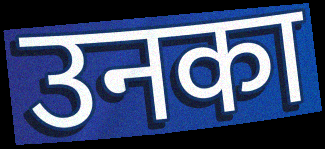
उनका